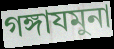
গঙ্গাযমুনা